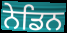
ਨੇਡਿਨ